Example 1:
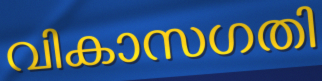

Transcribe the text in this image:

വികാസഗതി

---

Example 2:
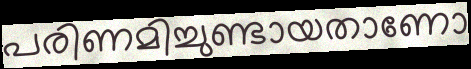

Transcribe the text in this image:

പരിണമിച്ചുണ്ടായതാണോ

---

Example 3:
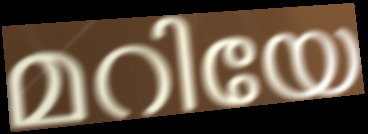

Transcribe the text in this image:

മറിയേ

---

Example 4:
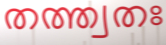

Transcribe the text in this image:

തത്ത്വതഃ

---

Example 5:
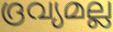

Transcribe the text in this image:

ദ്രവ്യമല്ല